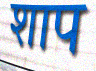
शाप